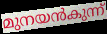
മുനയൻകുന്ന്